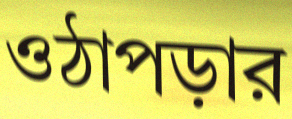
ওঠাপড়ার